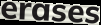
erases